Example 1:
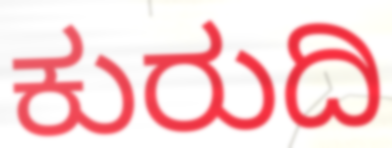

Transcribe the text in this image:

ಕುರುದಿ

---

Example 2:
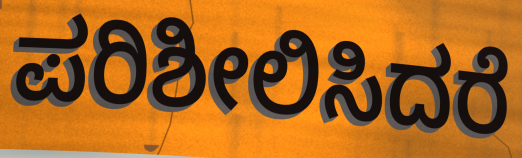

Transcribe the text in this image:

ಪರಿಶೀಲಿಸಿದರೆ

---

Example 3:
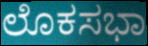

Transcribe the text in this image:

ಲೊಕಸಭಾ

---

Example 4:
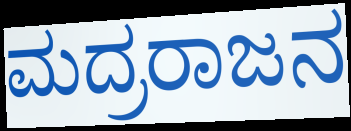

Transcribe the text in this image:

ಮದ್ರರಾಜನ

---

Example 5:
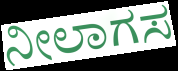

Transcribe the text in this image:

ನೀಲಾಗಸ